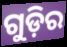
ଗୁଡ଼ିର